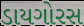
ડાયગોરસ